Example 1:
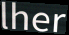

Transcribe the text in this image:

lher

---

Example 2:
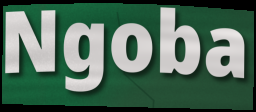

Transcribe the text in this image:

Ngoba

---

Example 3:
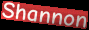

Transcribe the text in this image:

Shannon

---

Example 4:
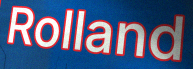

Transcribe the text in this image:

Rolland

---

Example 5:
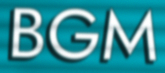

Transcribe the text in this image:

BGM